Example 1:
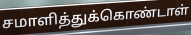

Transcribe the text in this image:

சமாளித்துக்கொண்டாள்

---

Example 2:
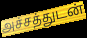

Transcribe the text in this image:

அச்சத்துடன்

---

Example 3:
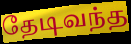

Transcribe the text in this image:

தேடிவந்த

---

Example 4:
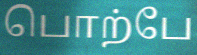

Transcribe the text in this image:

பொற்பே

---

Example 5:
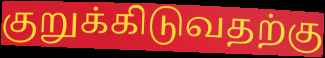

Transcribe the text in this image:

குறுக்கிடுவதற்கு